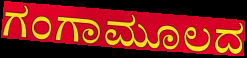
ಗಂಗಾಮೂಲದ